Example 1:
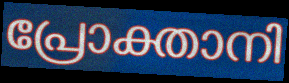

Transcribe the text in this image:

പ്രോക്താനി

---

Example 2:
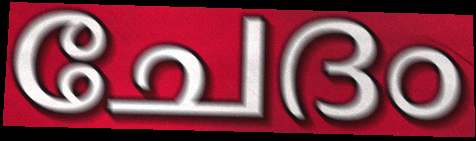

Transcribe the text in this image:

ചേദം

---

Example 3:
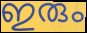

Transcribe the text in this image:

ഇരും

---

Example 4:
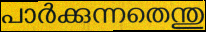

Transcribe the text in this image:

പാർക്കുന്നതെന്തു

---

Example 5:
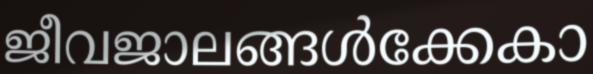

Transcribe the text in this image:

ജീവജാലങ്ങൾക്കേകാ